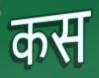
कस